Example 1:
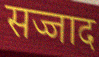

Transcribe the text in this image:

सज्जाद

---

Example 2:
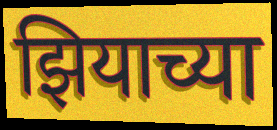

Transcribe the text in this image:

झियाच्या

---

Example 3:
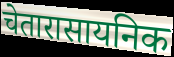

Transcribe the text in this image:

चेतारासायनिक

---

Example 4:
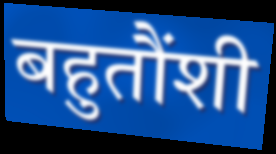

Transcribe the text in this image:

बहुतौंशी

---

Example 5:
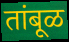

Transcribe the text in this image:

तांबूळ